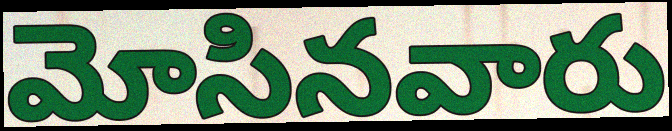
మోసినవారు